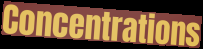
Concentrations